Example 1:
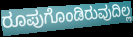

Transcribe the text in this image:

ರೂಪುಗೊಂಡಿರುವುದಿಲ್ಲ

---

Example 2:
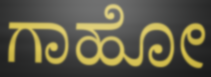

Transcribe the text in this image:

ಗಾಹೋ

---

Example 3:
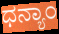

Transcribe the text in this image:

ಧನ್ಯಾಂ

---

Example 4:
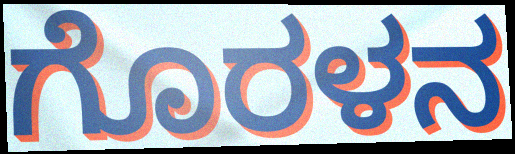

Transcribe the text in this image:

ಗೊರಳನ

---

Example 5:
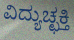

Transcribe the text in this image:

ವಿದ್ಯುಚ್ಛಕ್ತಿ